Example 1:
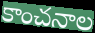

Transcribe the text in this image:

కాంచనాల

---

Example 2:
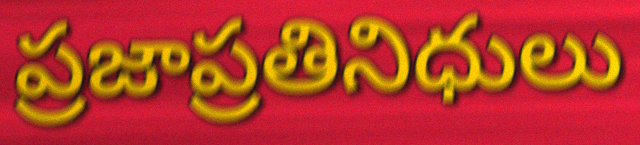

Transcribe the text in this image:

ప్రజాప్రతినిధులు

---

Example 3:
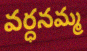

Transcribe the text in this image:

వర్ధనమ్మ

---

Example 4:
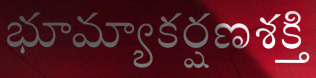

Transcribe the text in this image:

భూమ్యాకర్షణశక్తి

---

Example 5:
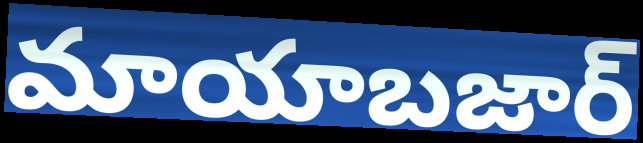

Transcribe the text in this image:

మాయాబజార్